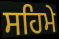
ਸਹਿਮੇ